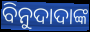
ବିନୁଦାଦାଙ୍କ